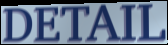
DETAIL